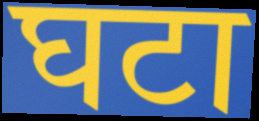
घटा